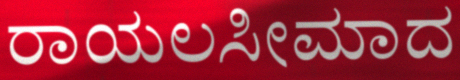
ರಾಯಲಸೀಮಾದ